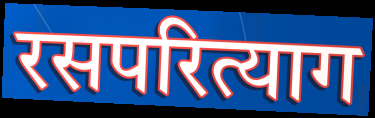
रसपरित्याग